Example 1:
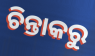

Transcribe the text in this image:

ଚିନ୍ତାକରୁ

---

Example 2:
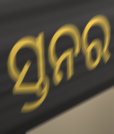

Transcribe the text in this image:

ସ୍ତନର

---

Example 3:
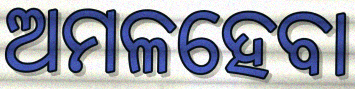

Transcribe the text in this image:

ଅମଳହେବା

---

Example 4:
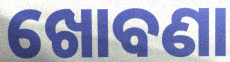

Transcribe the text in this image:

ଖୋବଣା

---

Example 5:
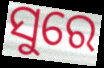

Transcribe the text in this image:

ସୁରେ